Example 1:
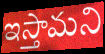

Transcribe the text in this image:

ఇస్తామని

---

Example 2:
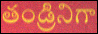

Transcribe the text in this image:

తండ్రినిగా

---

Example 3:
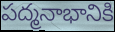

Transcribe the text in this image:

పద్మనాభానికి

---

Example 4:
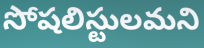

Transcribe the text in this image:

సోషలిస్టులమని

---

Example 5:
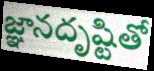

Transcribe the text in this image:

జ్ఞానదృష్టితో